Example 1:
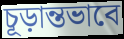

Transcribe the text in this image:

চূড়ান্তভাবে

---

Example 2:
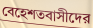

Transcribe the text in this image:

বেহেশতবাসীদের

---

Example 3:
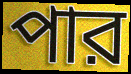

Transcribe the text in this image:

পার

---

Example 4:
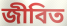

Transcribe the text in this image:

জীবিত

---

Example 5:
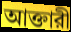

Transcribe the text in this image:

আক্তারী